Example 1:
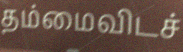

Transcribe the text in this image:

தம்மைவிடச்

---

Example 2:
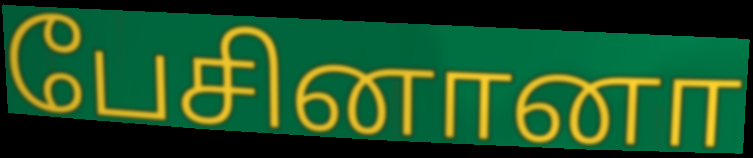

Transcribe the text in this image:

பேசினானா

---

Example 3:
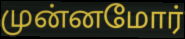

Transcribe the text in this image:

முன்னமோர்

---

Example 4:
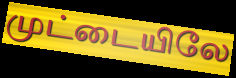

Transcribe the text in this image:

முட்டையிலே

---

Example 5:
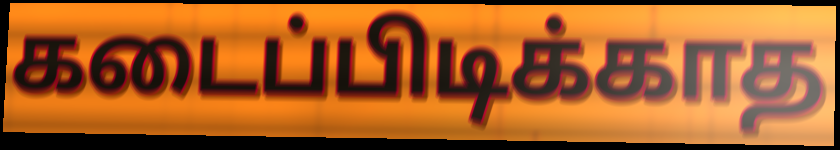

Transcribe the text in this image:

கடைப்பிடிக்காத